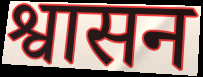
श्वासन